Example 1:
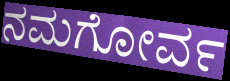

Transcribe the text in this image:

ನಮಗೋರ್ವ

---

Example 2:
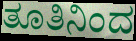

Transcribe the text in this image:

ತೂತಿನಿಂದ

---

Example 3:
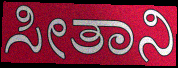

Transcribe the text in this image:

ಸೀತಾನಿ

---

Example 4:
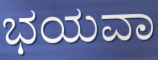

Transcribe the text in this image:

ಭಯವಾ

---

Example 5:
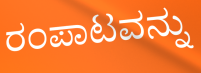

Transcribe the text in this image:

ರಂಪಾಟವನ್ನು